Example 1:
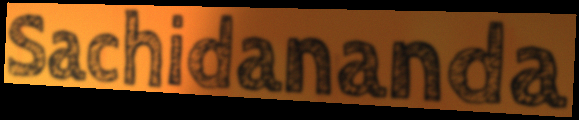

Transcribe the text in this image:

Sachidananda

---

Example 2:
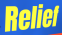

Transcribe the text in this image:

Relief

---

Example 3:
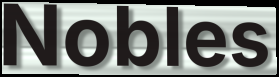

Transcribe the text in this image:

Nobles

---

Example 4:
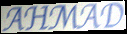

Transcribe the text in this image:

AHMAD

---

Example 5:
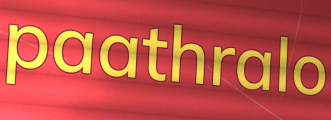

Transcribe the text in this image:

paathralo